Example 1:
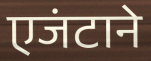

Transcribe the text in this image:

एजंटाने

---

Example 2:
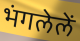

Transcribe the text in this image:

भंगलेलें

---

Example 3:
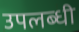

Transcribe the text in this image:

उपलब्धी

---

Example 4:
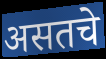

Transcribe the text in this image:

असतचे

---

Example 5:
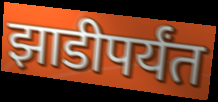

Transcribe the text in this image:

झाडीपर्यंत